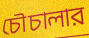
চৌচালার